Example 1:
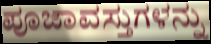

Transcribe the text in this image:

ಪೂಜಾವಸ್ತುಗಳನ್ನು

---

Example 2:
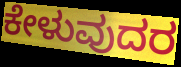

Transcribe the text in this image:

ಕೇಳುವುದರ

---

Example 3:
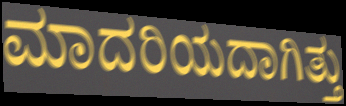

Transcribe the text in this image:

ಮಾದರಿಯದಾಗಿತ್ತು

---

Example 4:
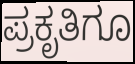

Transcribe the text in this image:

ಪ್ರಕೃತಿಗೂ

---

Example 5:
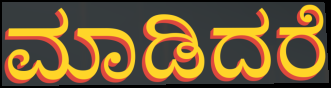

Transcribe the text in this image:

ಮಾಡಿದರೆ